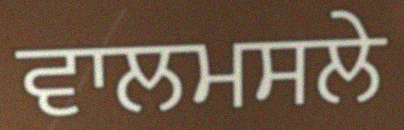
ਵਾਲਮਸਲੇ